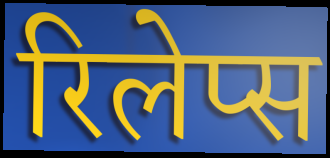
रिलेप्स